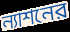
ন্যাশনের